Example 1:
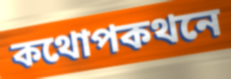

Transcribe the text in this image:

কথোপকথনে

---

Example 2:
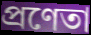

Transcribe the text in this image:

প্রণেতা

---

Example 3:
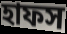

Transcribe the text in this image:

হাফস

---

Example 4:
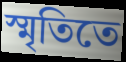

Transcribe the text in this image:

স্মৃতিতে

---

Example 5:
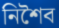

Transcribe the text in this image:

নিশৈব